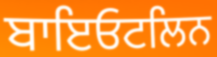
ਬਾਇਓਟਲਿਨ